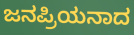
ಜನಪ್ರಿಯನಾದ